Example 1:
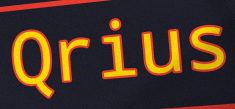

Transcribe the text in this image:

Qrius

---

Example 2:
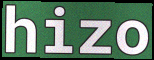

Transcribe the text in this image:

hizo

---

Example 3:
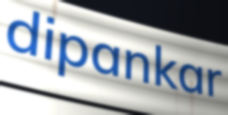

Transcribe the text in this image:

dipankar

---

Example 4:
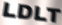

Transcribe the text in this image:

LDLT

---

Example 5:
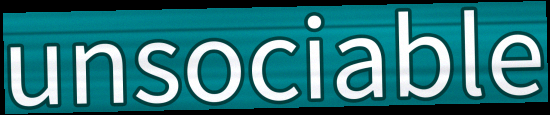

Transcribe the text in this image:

unsociable